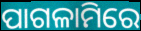
ପାଗଳାମିରେ